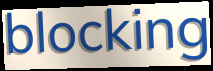
blocking